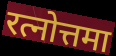
रत्नोत्तमा